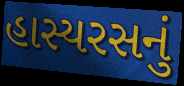
હાસ્યરસનું